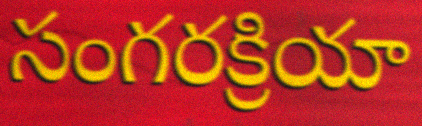
సంగరక్రియా